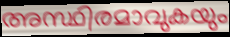
അസ്ഥിരമാവുകയും